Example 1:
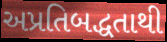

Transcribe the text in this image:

અપ્રતિબદ્ધતાથી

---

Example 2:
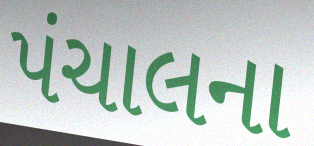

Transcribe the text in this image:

પંચાલના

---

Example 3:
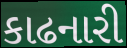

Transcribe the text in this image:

કાઢનારી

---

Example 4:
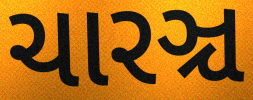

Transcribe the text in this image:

ચારઞ્ચ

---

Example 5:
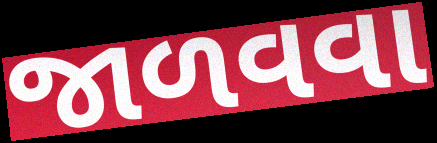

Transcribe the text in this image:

જાળવવા